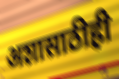
अशासाठीही